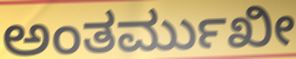
ಅಂತರ್ಮುಖೀ